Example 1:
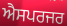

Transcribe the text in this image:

ਐਸਪਰਜਰ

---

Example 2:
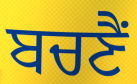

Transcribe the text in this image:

ਬਚਣੈਂ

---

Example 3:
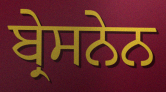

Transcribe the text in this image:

ਬ੍ਰੇਸਨੇਨ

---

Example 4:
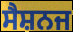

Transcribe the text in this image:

ਸੈਸ਼ਨਜ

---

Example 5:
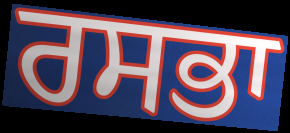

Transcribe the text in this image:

ਰਸਭਾ